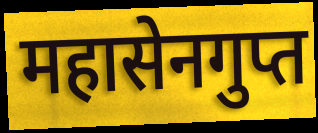
महासेनगुप्त